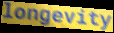
longevity